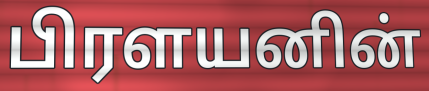
பிரளயனின்